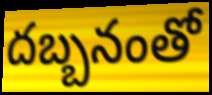
దబ్బనంతో